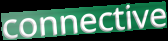
connective